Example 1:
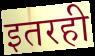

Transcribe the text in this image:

इतरही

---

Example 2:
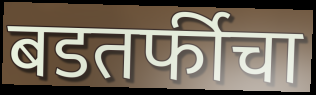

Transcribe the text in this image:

बडतर्फीचा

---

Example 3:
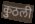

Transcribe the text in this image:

कुठली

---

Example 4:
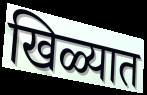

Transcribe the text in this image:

खिळ्यात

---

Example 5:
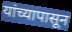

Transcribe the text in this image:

यांच्यापासून